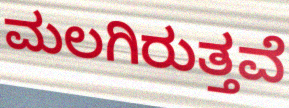
ಮಲಗಿರುತ್ತವೆ